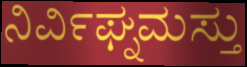
ನಿರ್ವಿಘ್ನಮಸ್ತು